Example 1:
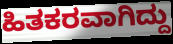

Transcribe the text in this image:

ಹಿತಕರವಾಗಿದ್ದು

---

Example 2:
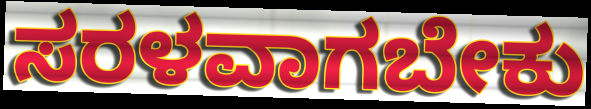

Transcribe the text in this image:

ಸರಳವಾಗಬೇಕು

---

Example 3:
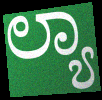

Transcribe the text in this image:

ಲ್ಯಾ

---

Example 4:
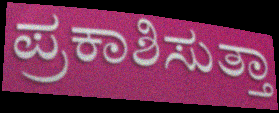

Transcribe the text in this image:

ಪ್ರಕಾಶಿಸುತ್ತಾ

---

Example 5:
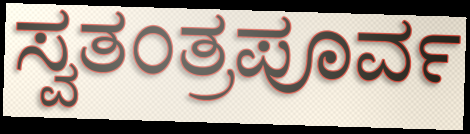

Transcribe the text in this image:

ಸ್ವತಂತ್ರಪೂರ್ವ